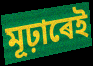
মূঢ়াৰেই